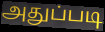
அதுப்படி